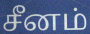
சீனம்